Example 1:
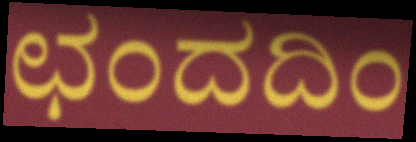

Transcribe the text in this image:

ಛಂದದಿಂ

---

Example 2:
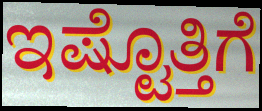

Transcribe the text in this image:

ಇಷ್ಟೊತ್ತಿಗೆ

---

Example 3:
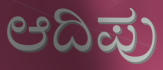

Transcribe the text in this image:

ಆದಿಪು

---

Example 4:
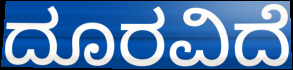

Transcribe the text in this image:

ದೂರವಿದೆ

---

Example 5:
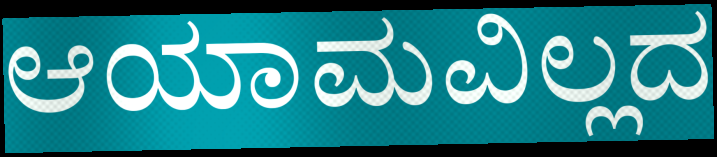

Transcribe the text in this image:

ಆಯಾಮವಿಲ್ಲದ